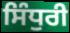
ਸਿੰਧੁਰੀ